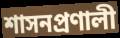
শাসনপ্রণালী